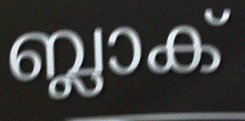
ബ്ലാക്